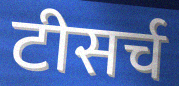
टीसर्च